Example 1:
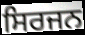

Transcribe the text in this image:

ਸਿਰਜਨ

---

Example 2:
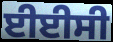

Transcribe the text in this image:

ਈਈਸੀ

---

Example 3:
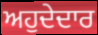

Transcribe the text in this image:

ਅਹੁਦੇਦਾਰ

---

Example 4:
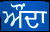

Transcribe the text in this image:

ਔਂਦਾ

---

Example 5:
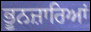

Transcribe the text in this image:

ਭੂਨਜ਼ਾਰਿਆਂ